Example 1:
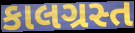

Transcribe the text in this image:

કાલગ્રસ્ત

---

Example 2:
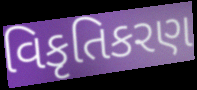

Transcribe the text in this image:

વિકૃતિકરણ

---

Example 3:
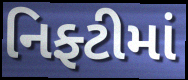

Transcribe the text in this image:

નિફ્ટીમાં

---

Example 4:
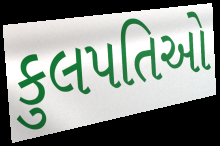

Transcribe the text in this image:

કુલપતિઓ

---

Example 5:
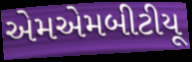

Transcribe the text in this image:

એમએમબીટીયૂ